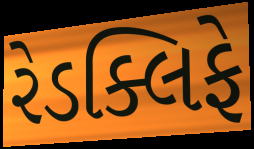
રેડક્લિફે